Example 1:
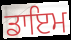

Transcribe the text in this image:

ਡਾਇਮ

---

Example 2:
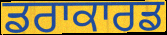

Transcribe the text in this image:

ਡਰਾਕਾਰਡ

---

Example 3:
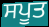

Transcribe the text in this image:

ਸਪੂਤ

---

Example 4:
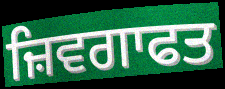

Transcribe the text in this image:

ਜ਼ਿਵਗਾਫਤ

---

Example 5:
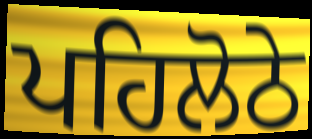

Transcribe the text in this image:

ਪਹਿਲੋਠੇ